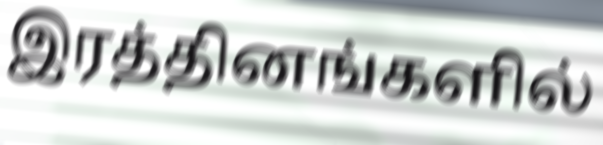
இரத்தினங்களில்